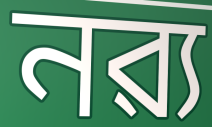
নৱ্য